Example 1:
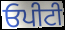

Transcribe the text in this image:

ਓਪੀਟੀ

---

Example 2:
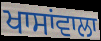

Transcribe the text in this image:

ਖਾਸਾਂਵਾਲਾ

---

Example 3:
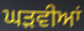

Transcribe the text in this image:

ਘੜਵੀਆਂ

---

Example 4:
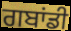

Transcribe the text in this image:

ਗਬਾਂਡੀ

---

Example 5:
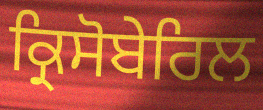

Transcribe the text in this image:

ਕ੍ਰਿਸੋਬੇਰਿਲ